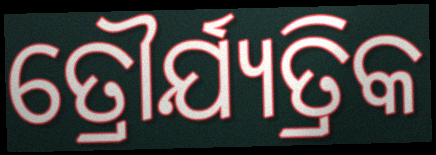
ତ୍ରୌର୍ଯ୍ୟତ୍ରିକ